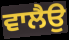
ਵਾਲੈਉ